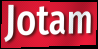
Jotam